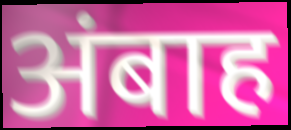
अंबाह